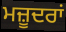
ਮਜ਼ੂਦਰਾਂ